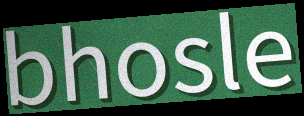
bhosle